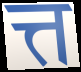
त्त